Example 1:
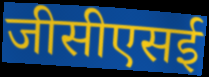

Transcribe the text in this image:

जीसीएसई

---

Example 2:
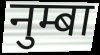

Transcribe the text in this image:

नुम्बा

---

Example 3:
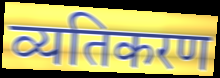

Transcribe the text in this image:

व्यतिकरण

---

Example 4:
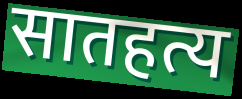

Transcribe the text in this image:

सातहत्य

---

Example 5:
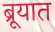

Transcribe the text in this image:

ब्रूयात